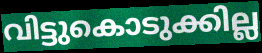
വിട്ടുകൊടുക്കില്ല